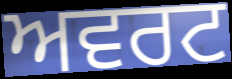
ਅਵਰਟ